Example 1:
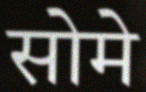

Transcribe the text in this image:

सोमे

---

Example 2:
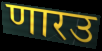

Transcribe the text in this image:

णारउ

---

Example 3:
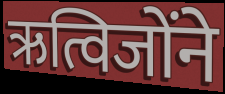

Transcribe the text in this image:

ऋत्विजोंने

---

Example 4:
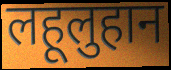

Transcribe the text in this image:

लहूलुहान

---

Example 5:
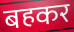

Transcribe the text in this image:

बहकर